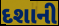
દશાની